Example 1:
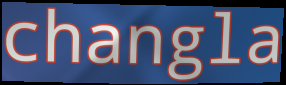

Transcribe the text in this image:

changla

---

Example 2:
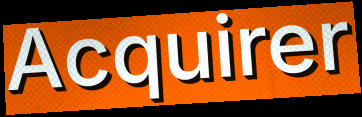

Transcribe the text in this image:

Acquirer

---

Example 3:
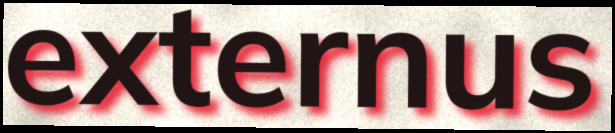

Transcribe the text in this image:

externus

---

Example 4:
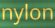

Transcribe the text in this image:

nylon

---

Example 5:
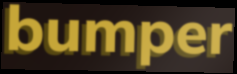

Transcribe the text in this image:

bumper